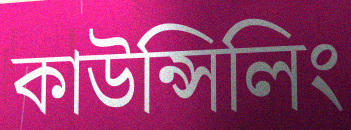
কাউন্সিলিং